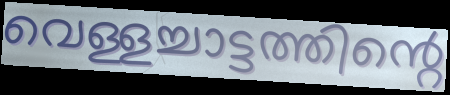
വെള്ളച്ചാട്ടത്തിന്റെ